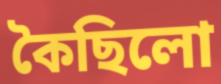
কৈছিলো